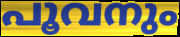
പൂവനും